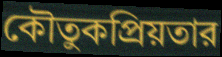
কৌতুকপ্রিয়তার